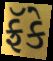
ફ્રૅંકે